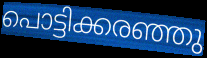
പൊട്ടിക്കരഞ്ഞു